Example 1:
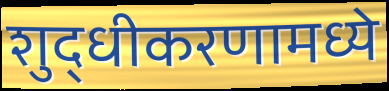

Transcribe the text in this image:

शुद्धीकरणामध्ये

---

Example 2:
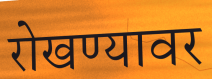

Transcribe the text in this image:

रोखण्यावर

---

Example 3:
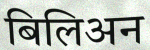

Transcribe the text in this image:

बिलिअन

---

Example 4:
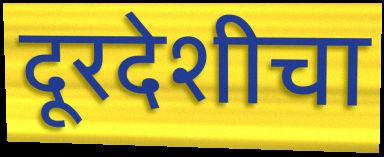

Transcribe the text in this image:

दूरदेशीचा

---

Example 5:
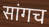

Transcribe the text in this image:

सांगच